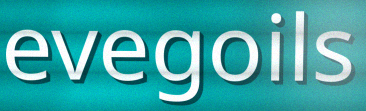
evegoils